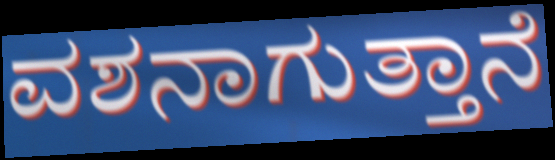
ವಶನಾಗುತ್ತಾನೆ